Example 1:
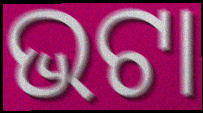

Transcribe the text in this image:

ଭଟା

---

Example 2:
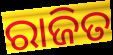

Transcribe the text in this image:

ରାଜିତ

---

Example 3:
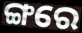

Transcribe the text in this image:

ଙ୍ଗରେ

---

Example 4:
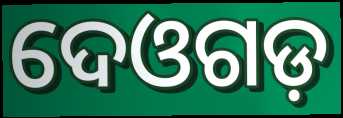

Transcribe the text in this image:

ଦେଓଗଡ଼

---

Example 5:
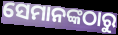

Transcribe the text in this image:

ସେମାନଙ୍କଠାରୁ